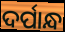
ଦର୍ପାନ୍ଧ